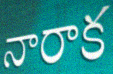
నారాక